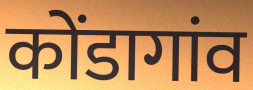
कोंडागांव